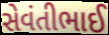
સેવંતીભાઈ